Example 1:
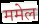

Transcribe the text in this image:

ममेल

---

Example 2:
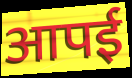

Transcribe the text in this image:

आपई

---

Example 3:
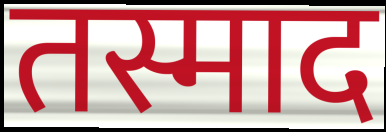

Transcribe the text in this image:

तस्माद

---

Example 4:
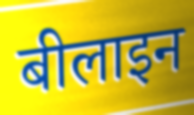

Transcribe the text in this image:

बीलाइन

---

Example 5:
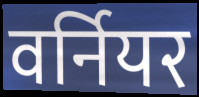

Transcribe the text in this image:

वर्नियर